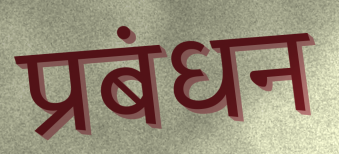
प्रबंधन